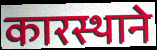
कारस्थाने